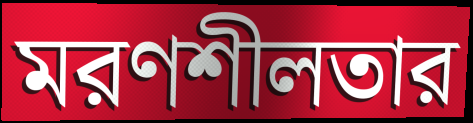
মরণশীলতার